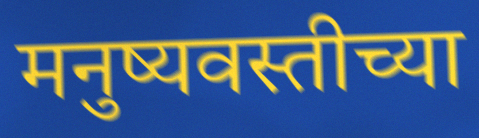
मनुष्यवस्तीच्या